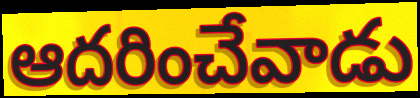
ఆదరించేవాడు